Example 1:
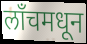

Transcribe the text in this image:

लॉंचमधून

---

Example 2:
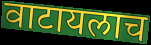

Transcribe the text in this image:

वाटायलाच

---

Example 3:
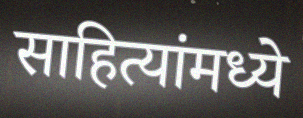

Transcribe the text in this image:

साहित्यांमध्ये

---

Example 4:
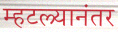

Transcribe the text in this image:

म्हटल्यानंतर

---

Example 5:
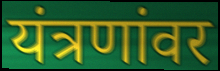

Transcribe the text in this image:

यंत्रणांवर